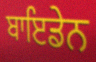
ਬਾਇਡੇਨ